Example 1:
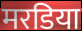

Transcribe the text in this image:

मरडिया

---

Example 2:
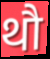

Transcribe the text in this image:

थौ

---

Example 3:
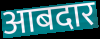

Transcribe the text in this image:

आबदार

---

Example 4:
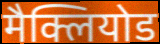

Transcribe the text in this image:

मैक्लियोड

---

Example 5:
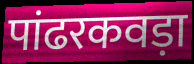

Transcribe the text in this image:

पांढरकवड़ा